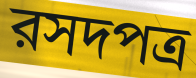
রসদপত্র